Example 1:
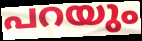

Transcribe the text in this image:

പറയും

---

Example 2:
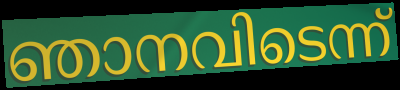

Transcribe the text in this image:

ഞാനവിടെന്ന്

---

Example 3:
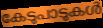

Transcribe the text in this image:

കേടുപാടുകൾ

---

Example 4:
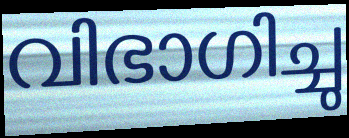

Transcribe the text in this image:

വിഭാഗിച്ചു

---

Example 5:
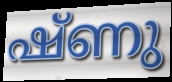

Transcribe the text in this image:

ഷ്ണു